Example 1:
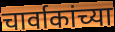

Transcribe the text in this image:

चार्वाकांच्या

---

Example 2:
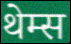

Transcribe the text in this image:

थेम्स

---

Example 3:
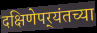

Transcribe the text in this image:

दक्षिणेपर्यंतच्या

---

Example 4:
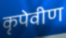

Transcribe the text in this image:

कृपेवीण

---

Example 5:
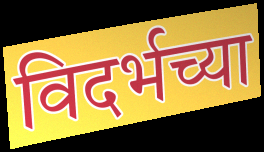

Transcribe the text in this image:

विदर्भच्या